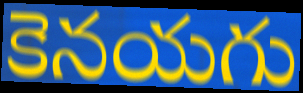
కెనయగు